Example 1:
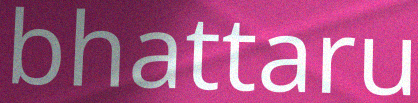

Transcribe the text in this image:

bhattaru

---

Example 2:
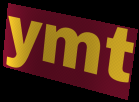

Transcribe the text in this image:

ymt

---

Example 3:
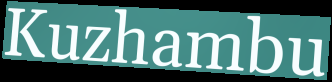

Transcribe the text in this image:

Kuzhambu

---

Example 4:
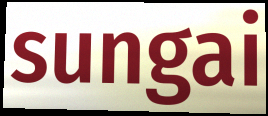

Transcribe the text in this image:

sungai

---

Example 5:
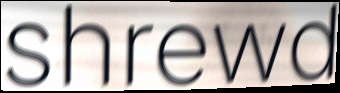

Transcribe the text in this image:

shrewd